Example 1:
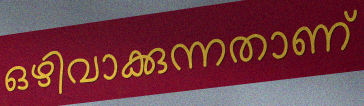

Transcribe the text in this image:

ഒഴിവാക്കുന്നതാണ്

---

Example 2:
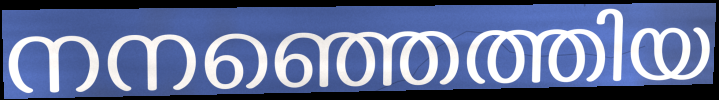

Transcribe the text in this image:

നനഞ്ഞെത്തിയ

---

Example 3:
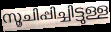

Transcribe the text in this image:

സൂചിപ്പിച്ചിട്ടുള്ള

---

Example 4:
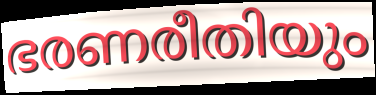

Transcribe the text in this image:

ഭരണരീതിയും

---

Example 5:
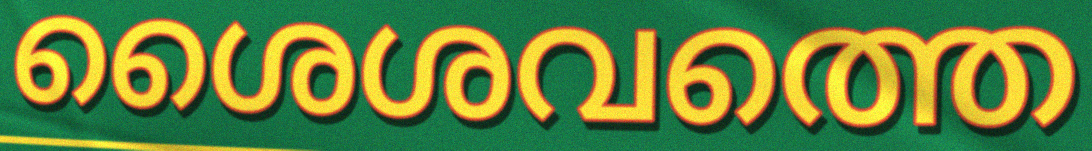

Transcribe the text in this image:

ശൈശവത്തെ